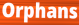
Orphans